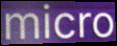
micro